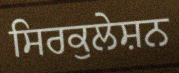
ਸਿਰਕੁਲੇਸ਼ਨ